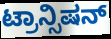
ಟ್ರಾನ್ಸಿಷನ್